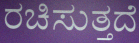
ರಚಿಸುತ್ತದೆ